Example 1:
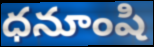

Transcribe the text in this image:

ధనూంషి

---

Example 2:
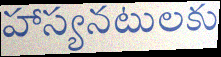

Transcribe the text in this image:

హాస్యనటులకు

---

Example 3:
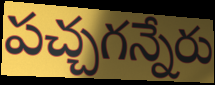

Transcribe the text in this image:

పచ్చగన్నేరు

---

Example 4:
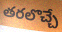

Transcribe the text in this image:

తరలొచ్చే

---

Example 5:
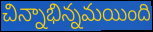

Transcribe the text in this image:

చిన్నాభిన్నమయింది